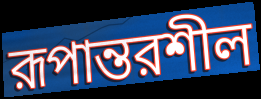
রূপান্তরশীল